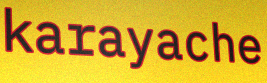
karayache